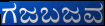
ಗಜಬಜವ